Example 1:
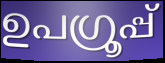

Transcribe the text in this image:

ഉപഗ്രൂപ്പ്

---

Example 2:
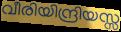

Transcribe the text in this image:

വീരിയിന്ദ്രിയസ്സ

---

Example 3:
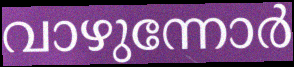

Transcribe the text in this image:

വാഴുന്നോർ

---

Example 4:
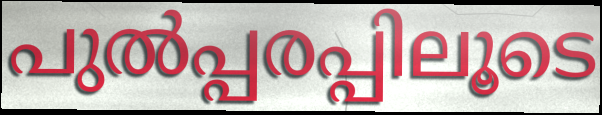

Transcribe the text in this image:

പുൽപ്പരപ്പിലൂടെ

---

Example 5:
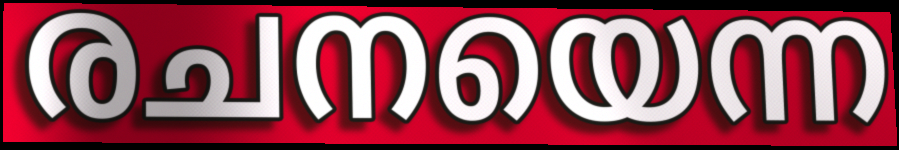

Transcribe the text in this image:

രചനയെന്ന